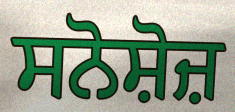
ਸਨੋਸ਼ੋਜ਼